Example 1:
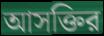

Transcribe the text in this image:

আসক্তির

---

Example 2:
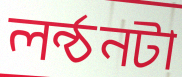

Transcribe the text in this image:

লন্ঠনটা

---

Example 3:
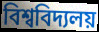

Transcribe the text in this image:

বিশ্ববিদ্যলয়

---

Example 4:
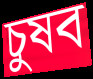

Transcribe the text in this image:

চুষব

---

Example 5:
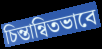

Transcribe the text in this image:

চিন্তান্বিতভাবে